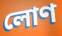
লোণ